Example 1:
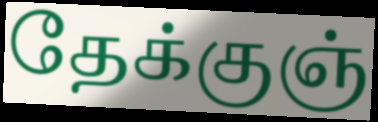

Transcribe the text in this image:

தேக்குஞ்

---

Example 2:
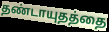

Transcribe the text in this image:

தண்டாயுதத்தை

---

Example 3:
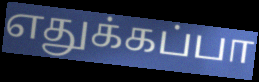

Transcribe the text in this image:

எதுக்கப்பா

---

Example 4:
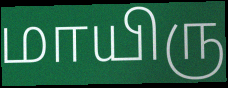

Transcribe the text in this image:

மாயிரு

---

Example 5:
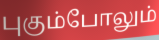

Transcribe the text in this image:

புகும்போலும்